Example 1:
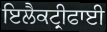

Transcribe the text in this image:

ਇਲੈਕਟ੍ਰੀਫਾਈ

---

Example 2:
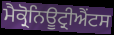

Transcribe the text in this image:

ਮੈਕ੍ਰੋਨਿਊਟ੍ਰੀਐਂਟਸ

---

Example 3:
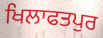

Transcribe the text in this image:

ਖਿਲਾਫਤਪੁਰ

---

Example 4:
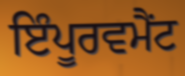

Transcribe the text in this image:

ਇੰਪੂਰਵਮੈਂਟ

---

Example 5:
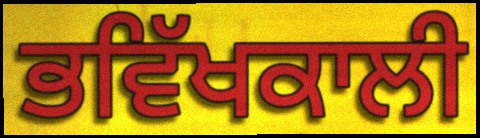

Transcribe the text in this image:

ਭਵਿੱਖਕਾਲੀ